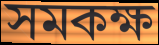
সমকক্ষ